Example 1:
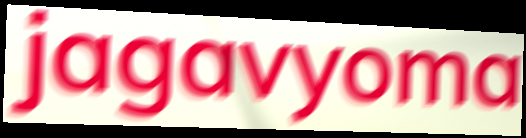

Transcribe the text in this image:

jagavyoma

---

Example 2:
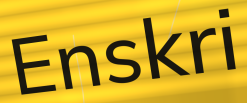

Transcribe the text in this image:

Enskri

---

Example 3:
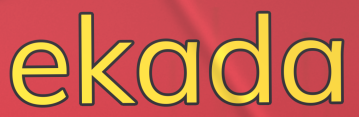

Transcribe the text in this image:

ekada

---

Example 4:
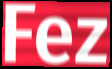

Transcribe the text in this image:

Fez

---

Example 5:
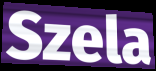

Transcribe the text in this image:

Szela